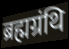
ब्रह्मग्रंथि